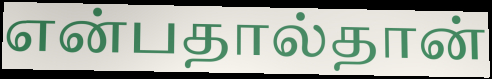
என்பதால்தான்